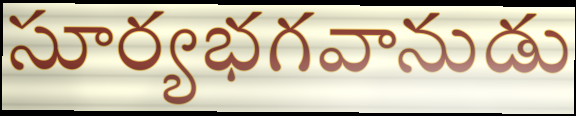
సూర్యభగవానుడు